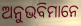
ଅନୁଭବିମାନେ